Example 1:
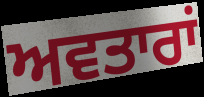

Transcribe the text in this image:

ਅਵਤਾਰਾਂ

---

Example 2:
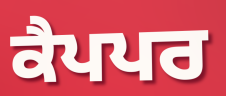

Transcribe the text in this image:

ਕੈਪਪਰ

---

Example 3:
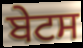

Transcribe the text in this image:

ਬੇਟਸ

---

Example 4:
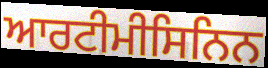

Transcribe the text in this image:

ਆਰਟੀਮੀਸਿਨਿਨ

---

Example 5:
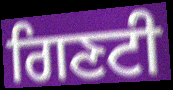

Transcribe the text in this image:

ਗਿਣਟੀ